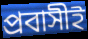
প্রবাসীই